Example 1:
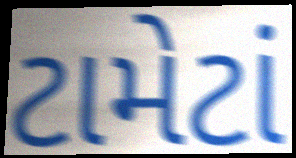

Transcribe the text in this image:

ટામેટાં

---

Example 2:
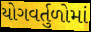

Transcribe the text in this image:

યોગવર્તુળોમાં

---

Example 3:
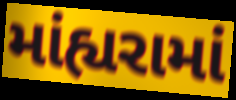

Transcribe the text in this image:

માંહ્યરામાં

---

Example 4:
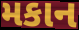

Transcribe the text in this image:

મકાન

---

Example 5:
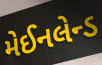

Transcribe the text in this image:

મેઈનલેન્ડ